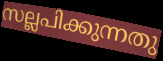
സല്ലപിക്കുന്നതു